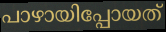
പാഴായിപ്പോയത്